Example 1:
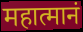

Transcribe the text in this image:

महात्मानं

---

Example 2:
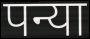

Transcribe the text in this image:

पन्या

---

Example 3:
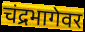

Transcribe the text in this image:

चंद्रभागेवर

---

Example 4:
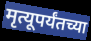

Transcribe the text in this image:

मृत्यूपर्यंतच्या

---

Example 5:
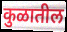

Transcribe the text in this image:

कुळातील